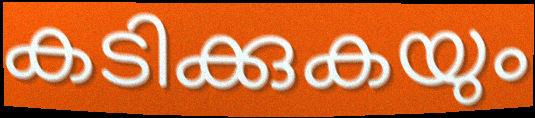
കടിക്കുകയും